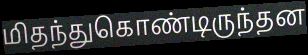
மிதந்துகொண்டிருந்தன